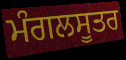
ਮੰਗਲਸੂਤਰ